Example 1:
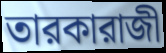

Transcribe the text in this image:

তারকারাজী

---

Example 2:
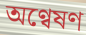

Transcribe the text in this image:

অণ্বেষণ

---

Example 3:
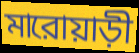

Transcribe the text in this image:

মারোয়াড়ী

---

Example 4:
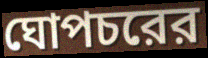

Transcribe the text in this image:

ঘোপচরের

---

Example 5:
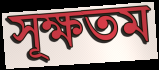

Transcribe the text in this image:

সূক্ষতম